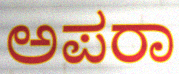
ಅಪರಾ